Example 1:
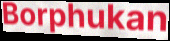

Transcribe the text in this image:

Borphukan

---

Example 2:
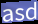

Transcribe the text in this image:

asd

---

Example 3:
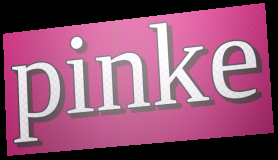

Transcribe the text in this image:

pinke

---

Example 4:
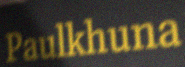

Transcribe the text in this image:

Paulkhuna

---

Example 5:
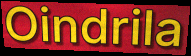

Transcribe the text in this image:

Oindrila